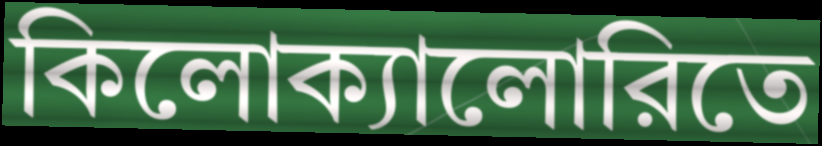
কিলোক্যালোরিতে